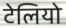
टेलियो